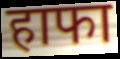
हाफा